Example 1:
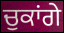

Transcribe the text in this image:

ਚੁਕਾਂਗੇ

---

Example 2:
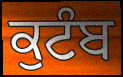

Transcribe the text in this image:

ਕੁਟੰਬ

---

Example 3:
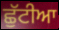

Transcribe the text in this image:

ਛੁੱਟੀਆ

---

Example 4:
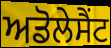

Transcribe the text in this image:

ਅਡੋਲੇਸੈਂਟ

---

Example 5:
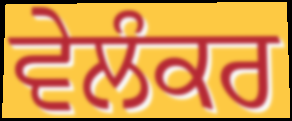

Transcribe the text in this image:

ਵੇਲੰਕਰ